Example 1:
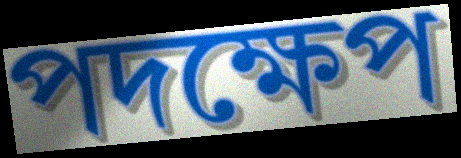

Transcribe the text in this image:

পদক্ষেপ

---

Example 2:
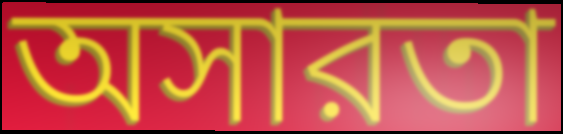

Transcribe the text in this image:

অসারতা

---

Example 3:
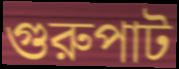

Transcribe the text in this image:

গুরুপাট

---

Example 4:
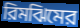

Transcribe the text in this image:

রিমঝিমের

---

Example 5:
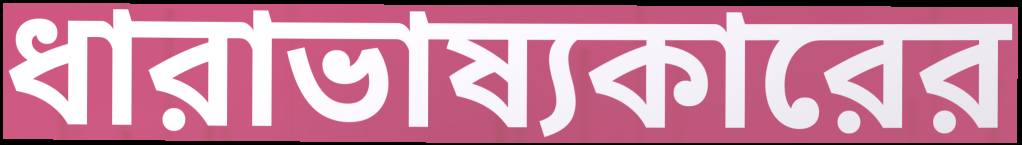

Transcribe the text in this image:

ধারাভাষ্যকারের